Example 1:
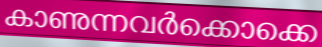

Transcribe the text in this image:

കാണുന്നവർക്കൊക്കെ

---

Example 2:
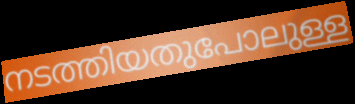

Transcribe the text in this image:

നടത്തിയതുപോലുള്ള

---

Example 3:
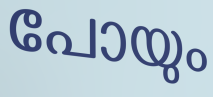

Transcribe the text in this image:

പോയും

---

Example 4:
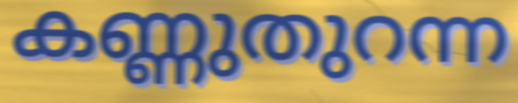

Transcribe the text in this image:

കണ്ണുതുറന്ന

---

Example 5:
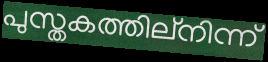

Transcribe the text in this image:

പുസ്തകത്തില്നിന്ന്